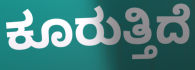
ಕೂರುತ್ತಿದೆ